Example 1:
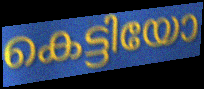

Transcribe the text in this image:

കെട്ടിയോ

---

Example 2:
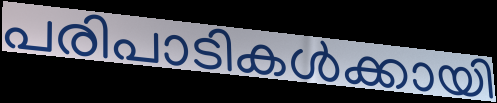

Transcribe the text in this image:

പരിപാടികൾക്കായി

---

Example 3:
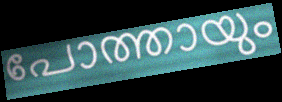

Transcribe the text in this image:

പോത്തായും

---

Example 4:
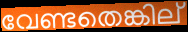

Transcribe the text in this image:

വേണ്ടതെങ്കില്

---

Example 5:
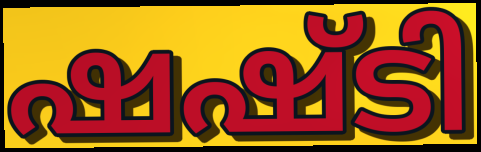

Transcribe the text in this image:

ഷഷ്ടി